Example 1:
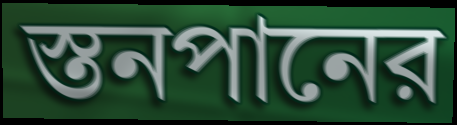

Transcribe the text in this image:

স্তনপানের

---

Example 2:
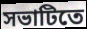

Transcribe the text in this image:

সভাটিতে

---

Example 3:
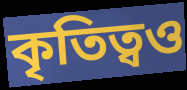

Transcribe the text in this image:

কৃতিত্বও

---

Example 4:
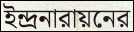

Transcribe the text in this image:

ইন্দ্রনারায়নের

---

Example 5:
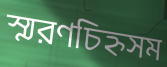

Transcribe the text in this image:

স্মরণচিহ্নসম